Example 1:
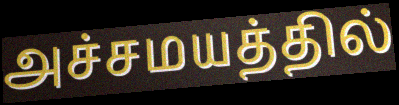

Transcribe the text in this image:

அச்சமயத்தில்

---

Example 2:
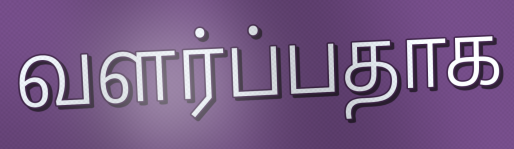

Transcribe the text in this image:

வளர்ப்பதாக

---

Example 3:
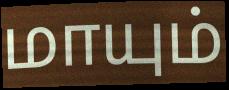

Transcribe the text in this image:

மாயும்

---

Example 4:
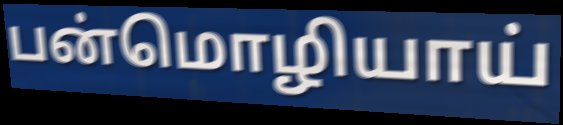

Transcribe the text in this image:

பன்மொழியாய்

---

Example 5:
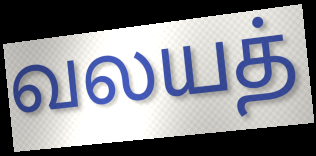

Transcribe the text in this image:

வலயத்